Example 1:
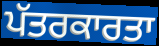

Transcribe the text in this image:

ਪੱਤਰਕਾਰਤਾ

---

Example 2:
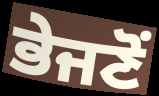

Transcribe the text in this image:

ਭੇਜਣੋਂ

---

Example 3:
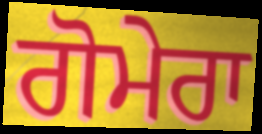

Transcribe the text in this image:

ਗੋਮੇਰਾ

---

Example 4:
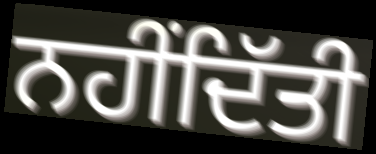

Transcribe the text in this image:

ਨਹੀਂਦਿੱਤੀ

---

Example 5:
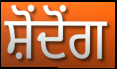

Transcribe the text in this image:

ਸ਼ੋਂਦੋਂਗ